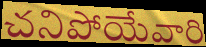
చనిపోయేవారి